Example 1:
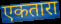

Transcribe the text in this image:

एकतारा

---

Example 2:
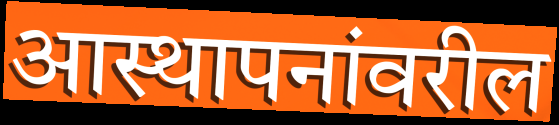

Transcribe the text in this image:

आस्थापनांवरील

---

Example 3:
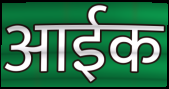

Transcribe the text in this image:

आईक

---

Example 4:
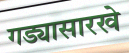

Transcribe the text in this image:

गड्यासारखे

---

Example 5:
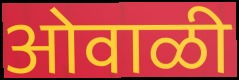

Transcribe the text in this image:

ओवाळी